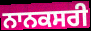
ਨਾਨਕਸਰੀ